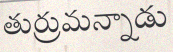
తుర్రుమన్నాడు